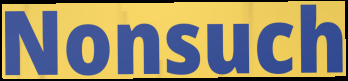
Nonsuch